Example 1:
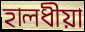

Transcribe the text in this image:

হালধীয়া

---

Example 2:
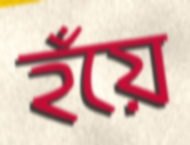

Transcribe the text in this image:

হঁয়ে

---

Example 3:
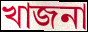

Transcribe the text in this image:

খাজনা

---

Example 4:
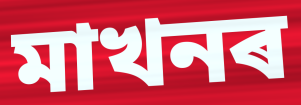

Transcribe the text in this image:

মাখনৰ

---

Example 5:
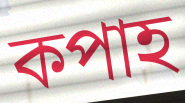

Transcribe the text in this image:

কপাহ